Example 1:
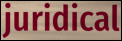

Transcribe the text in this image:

juridical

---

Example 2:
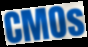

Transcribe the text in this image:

CMOs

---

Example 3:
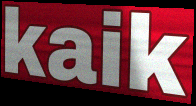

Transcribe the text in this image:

kaik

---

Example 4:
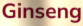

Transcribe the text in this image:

Ginseng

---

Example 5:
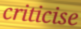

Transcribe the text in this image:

criticise